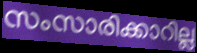
സംസാരിക്കാറില്ല